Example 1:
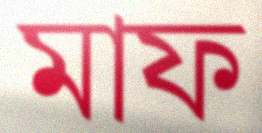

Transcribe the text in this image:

মাফ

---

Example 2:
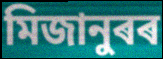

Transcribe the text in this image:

মিজানুৰৰ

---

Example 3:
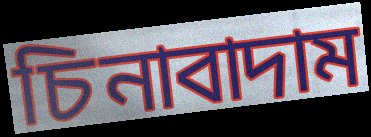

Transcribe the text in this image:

চিনাবাদাম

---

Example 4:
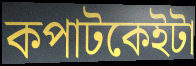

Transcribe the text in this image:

কপাটকেইটা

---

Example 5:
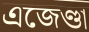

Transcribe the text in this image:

এজেণ্ডা